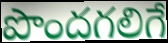
పొందగలిగే